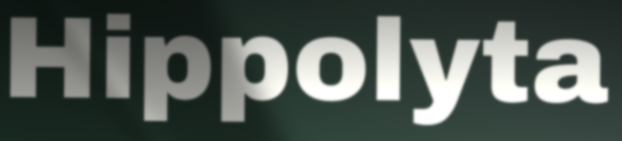
Hippolyta